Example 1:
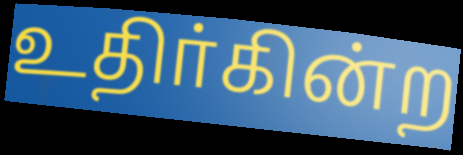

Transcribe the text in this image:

உதிர்கின்ற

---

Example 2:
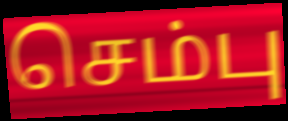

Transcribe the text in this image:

செம்பு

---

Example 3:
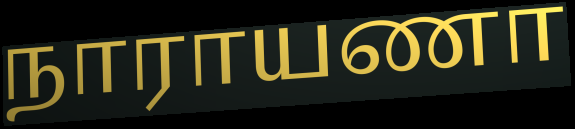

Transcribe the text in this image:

நாராயணா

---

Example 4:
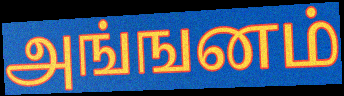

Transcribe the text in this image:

அங்ஙனம்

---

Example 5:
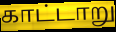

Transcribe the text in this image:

காட்டாறு